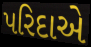
પરિદાએ